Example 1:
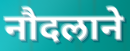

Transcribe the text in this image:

नौदलाने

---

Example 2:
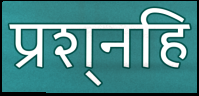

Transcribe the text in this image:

प्रश्नहि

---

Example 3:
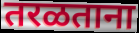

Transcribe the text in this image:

तरळताना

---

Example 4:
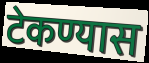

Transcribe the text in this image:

टेकण्यास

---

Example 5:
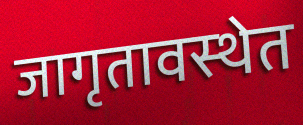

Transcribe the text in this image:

जागृतावस्थेत